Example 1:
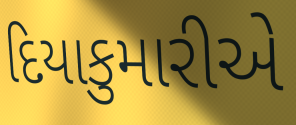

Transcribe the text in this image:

દિયાકુમારીએ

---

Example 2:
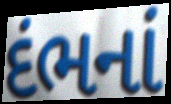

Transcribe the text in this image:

દંભનાં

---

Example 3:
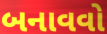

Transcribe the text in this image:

બનાવવો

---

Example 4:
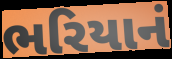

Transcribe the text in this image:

ભરિયાનં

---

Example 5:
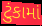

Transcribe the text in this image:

ટુંકામાં